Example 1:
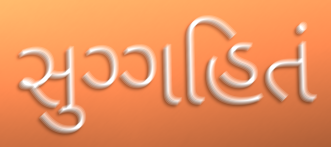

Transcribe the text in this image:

સુગ્ગહિતં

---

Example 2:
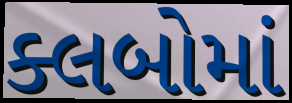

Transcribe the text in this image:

ક્લબોમાં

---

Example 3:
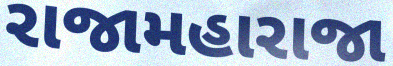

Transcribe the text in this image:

રાજામહારાજા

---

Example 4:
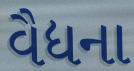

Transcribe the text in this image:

વૈદ્યના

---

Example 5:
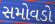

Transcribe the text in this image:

સમોવડો